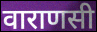
वाराणसी